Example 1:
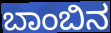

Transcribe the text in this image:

ಬಾಂಬಿನ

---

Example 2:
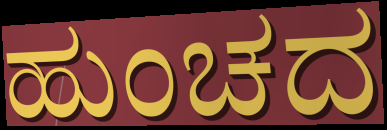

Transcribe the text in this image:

ಹುಂಚದ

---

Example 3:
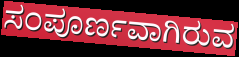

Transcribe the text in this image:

ಸಂಪೂರ್ಣವಾಗಿರುವ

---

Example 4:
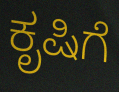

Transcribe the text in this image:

ಕೃಷಿಗೆ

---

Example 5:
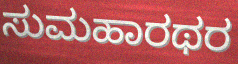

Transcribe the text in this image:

ಸುಮಹಾರಥರ